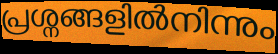
പ്രശ്നങ്ങളിൽനിന്നും